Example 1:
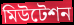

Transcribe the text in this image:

মিউটেশন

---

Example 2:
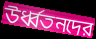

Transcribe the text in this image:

উর্ধ্বতনদের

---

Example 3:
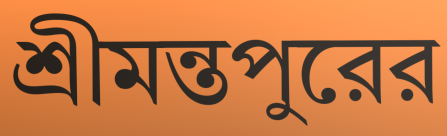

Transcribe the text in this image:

শ্রীমন্তপুরের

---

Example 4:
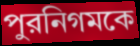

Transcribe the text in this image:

পুরনিগমকে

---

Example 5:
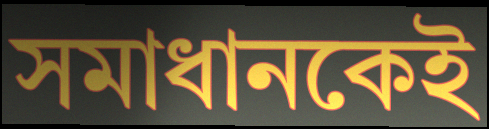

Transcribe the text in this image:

সমাধানকেই